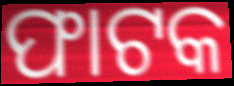
ଫାଟକ